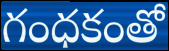
గంధకంతో